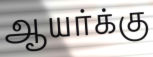
ஆயர்க்கு